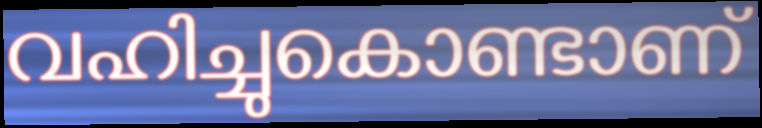
വഹിച്ചുകൊണ്ടാണ്